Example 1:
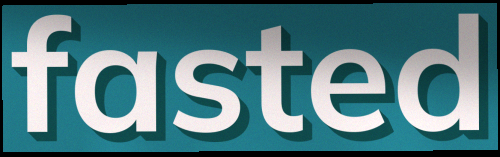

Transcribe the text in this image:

fasted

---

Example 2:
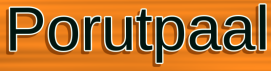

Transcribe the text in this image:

Porutpaal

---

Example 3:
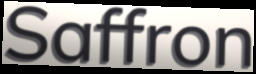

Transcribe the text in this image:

Saffron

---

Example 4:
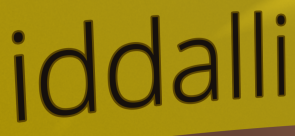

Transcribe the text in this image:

iddalli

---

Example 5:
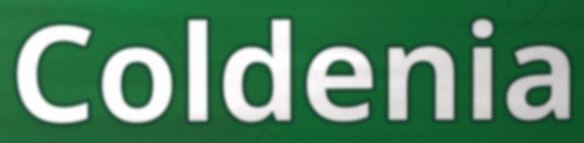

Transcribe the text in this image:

Coldenia